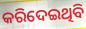
କରିଦେଇଥିବି